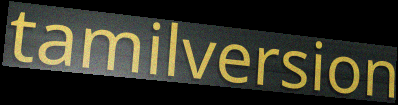
tamilversion